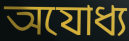
অযোধ্য